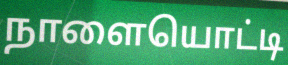
நாளையொட்டி